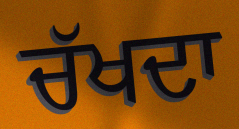
ਚੱਖਦਾ